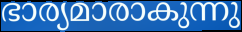
ഭാര്യമാരാകുന്നു